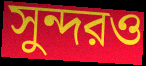
সুন্দরও